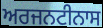
ਅਰਜਨਟੀਨਾਸ